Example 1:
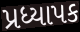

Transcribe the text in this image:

પ્રધ્યાપક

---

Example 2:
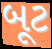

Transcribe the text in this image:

બૂટ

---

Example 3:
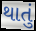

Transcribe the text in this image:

થાતું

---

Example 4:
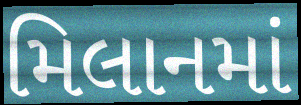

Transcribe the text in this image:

મિલાનમાં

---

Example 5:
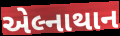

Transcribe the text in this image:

એલ્નાથાન